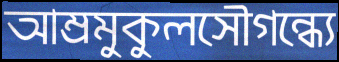
আম্রমুকুলসৌগন্ধ্যে